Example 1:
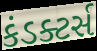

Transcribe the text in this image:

કંડક્ટર્સ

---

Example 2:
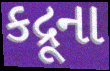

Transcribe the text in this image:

કદ્રૂના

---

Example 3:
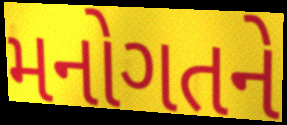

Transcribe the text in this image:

મનોગતને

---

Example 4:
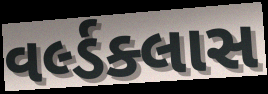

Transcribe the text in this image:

વર્લ્ડક્લાસ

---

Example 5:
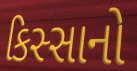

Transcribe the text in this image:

કિસ્સાનો